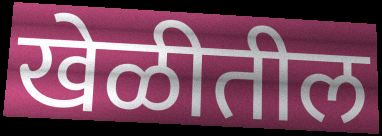
खेळीतील